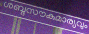
ശബ്ദസൗകുമാര്യവും